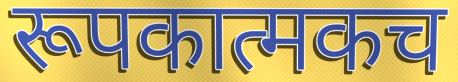
रूपकात्मकच